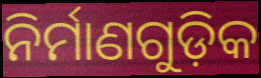
ନିର୍ମାଣଗୁଡ଼ିକ